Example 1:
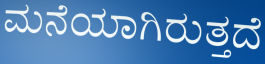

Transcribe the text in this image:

ಮನೆಯಾಗಿರುತ್ತದೆ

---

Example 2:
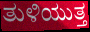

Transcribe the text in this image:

ತುಳಿಯುತ್ತ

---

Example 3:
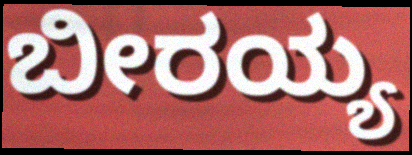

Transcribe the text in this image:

ಬೀರಯ್ಯ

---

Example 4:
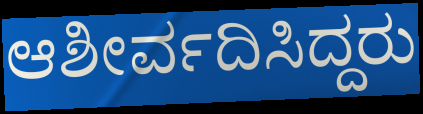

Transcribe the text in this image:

ಆಶೀರ್ವದಿಸಿದ್ದರು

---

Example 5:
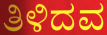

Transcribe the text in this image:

ತಿಳಿದವ